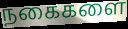
நகைகளை